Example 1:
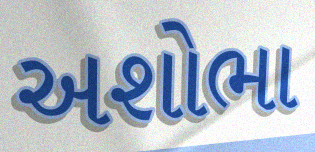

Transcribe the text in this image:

અશોભા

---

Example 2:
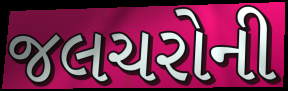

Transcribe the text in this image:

જલચરોની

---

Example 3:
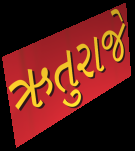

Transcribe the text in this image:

ઋતુરાજે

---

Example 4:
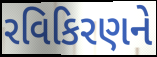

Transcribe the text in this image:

રવિકિરણને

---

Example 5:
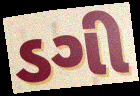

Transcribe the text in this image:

ડગી